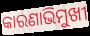
କାରଣାଭିମୁଖୀ